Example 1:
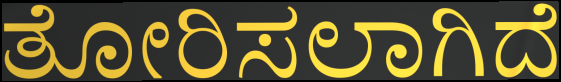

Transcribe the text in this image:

ತೋರಿಸಲಾಗಿದೆ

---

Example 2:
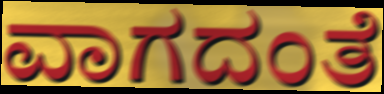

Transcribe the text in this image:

ವಾಗದಂತೆ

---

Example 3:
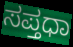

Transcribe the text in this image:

ಸಪ್ತಧಾ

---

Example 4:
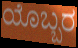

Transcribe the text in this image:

ಯೊಬ್ಬರ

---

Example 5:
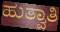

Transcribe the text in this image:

ಹುತ್ವಾತಿ